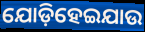
ଯୋଡ଼ିହେଇଯାଉ